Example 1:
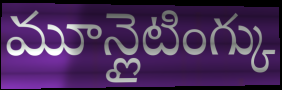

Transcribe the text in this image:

మూన్లైటింగ్కు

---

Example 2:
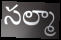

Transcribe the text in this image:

సల్మా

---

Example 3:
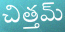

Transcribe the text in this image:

చిత్తమ్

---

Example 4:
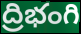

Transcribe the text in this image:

ద్రిభంగి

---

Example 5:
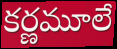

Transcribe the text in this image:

కర్ణమూలే